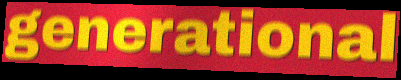
generational